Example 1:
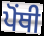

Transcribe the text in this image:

ਪੋਂਥੀ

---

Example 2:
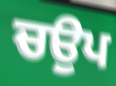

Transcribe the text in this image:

ਚਉਪ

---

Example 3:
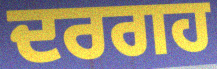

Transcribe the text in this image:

ਦਰਗਹ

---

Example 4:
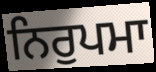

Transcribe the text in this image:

ਨਿਰੁਪਮਾ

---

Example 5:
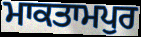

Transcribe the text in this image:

ਮਾਕਤਾਮਪੁਰ